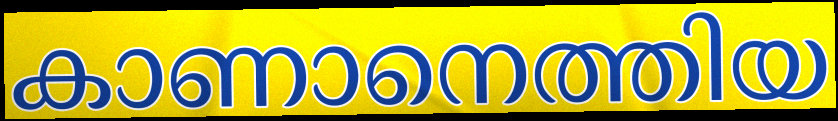
കാണാനെത്തിയ